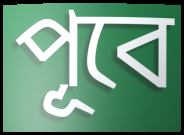
পূবে